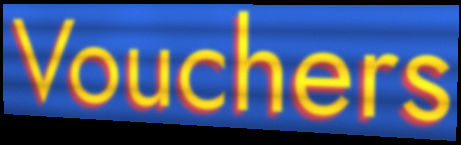
Vouchers